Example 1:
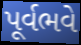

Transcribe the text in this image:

પૂર્વભવે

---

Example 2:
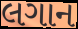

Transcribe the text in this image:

લગાન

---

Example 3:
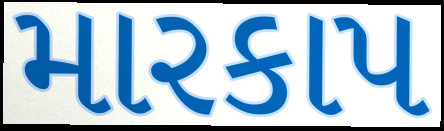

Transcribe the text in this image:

મારકાપ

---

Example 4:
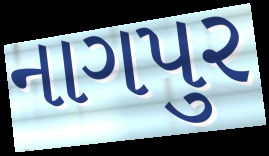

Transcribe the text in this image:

નાગપુર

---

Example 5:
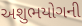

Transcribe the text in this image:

અશુભયોગની